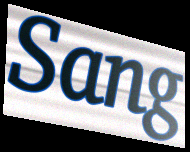
Sang